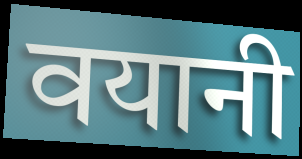
वयानी